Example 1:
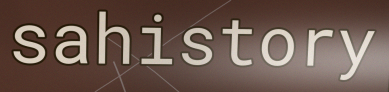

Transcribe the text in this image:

sahistory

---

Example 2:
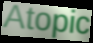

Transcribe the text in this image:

Atopic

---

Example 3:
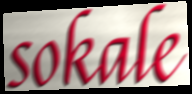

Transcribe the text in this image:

sokale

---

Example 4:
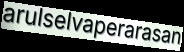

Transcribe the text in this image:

arulselvaperarasan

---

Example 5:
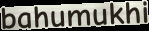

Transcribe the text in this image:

bahumukhi